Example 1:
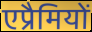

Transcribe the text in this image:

एप्रैमियों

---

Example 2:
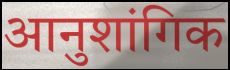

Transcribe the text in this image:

आनुशांगिक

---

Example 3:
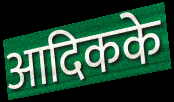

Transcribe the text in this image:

आदिकके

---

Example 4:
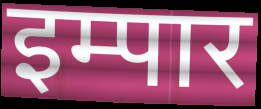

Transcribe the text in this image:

इम्पार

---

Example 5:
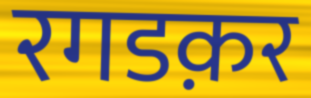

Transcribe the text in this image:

रगडक़र